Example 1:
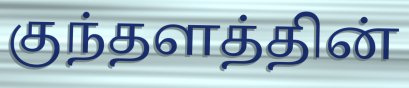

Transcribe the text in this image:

குந்தளத்தின்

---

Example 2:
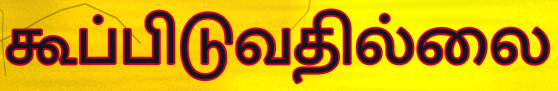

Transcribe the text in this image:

கூப்பிடுவதில்லை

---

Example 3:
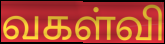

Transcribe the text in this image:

வகள்வி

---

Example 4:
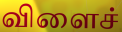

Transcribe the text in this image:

விளைச்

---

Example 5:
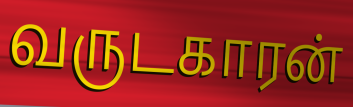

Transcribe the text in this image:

வருடகாரன்